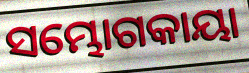
ସମ୍ଭୋଗକାୟା